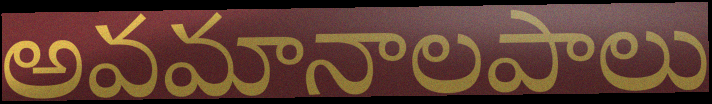
అవమానాలపాలు